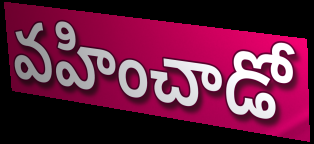
వహించాడో